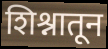
शिश्नातून